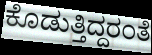
ಕೊಡುತ್ತಿದ್ದರಂತೆ